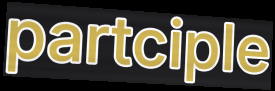
partciple